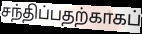
சந்திப்பதற்காகப்